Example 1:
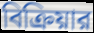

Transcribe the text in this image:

বিক্রিয়ার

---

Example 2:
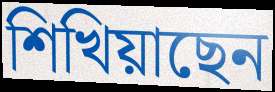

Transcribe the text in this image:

শিখিয়াছেন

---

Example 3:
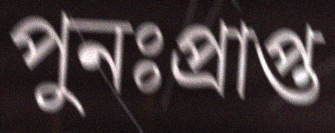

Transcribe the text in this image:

পুনঃপ্রাপ্ত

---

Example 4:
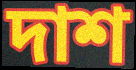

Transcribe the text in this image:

দাশ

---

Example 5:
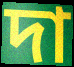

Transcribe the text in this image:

দা